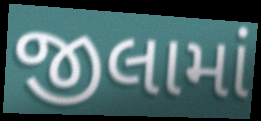
જીલામાં